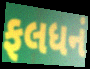
ફલધનં